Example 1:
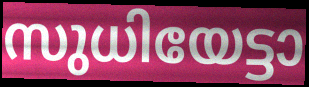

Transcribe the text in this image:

സുധിയേട്ടാ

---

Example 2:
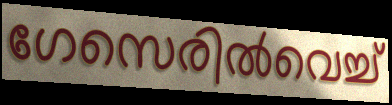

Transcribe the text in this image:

ഗേസെരിൽവെച്ച്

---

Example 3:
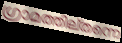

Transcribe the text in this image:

ഗ്രാമത്തില്തന്നെ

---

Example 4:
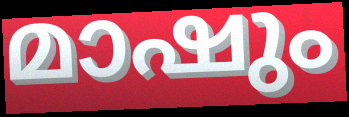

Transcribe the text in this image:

മാഷും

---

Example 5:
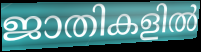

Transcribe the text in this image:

ജാതികളിൽ